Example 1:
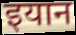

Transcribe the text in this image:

इयान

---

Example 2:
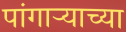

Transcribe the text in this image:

पांगार्‍याच्या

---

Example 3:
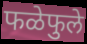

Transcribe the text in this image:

फळेफुले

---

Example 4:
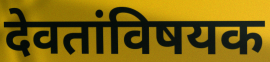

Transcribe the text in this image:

देवतांविषयक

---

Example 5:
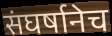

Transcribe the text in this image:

संघर्षानेच